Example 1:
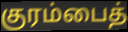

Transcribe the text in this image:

குரம்பைத்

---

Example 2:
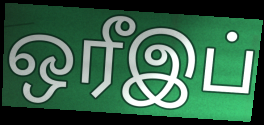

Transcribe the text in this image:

ஒரீஇப்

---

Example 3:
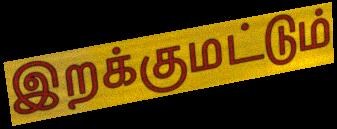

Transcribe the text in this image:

இறக்குமட்டும்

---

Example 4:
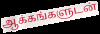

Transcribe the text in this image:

ஆக்கங்களுடன்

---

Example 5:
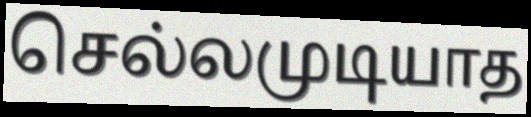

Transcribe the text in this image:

செல்லமுடியாத